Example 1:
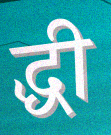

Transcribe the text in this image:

द्धी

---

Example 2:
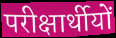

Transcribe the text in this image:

परीक्षार्थीयों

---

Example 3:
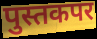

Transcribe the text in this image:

पुस्तकपर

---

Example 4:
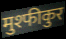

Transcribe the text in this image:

मुश्फीकुर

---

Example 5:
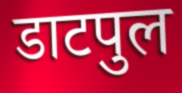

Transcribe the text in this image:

डाटपुल